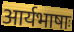
आर्यभाषाः